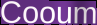
Cooum